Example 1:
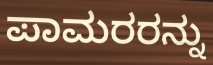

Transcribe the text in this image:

ಪಾಮರರನ್ನು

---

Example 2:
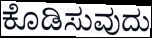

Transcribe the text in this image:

ಕೊಡಿಸುವುದು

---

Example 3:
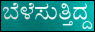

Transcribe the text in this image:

ಬೆಳೆಸುತ್ತಿದ್ದ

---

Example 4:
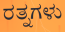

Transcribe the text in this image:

ರತ್ನಗಳು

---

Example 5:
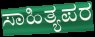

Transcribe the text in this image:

ಸಾಹಿತ್ಯಪರ